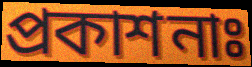
প্রকাশনাঃ